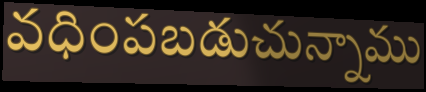
వధింపబడుచున్నాము